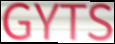
GYTS